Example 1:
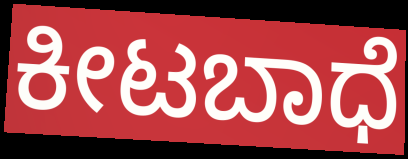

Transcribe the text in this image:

ಕೀಟಬಾಧೆ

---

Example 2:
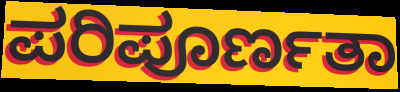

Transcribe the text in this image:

ಪರಿಪೂರ್ಣತಾ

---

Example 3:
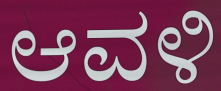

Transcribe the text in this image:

ಆವಳಿ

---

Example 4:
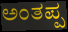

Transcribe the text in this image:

ಅಂತಪ್ಪ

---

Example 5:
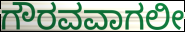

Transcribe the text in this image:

ಗೌರವವಾಗಲೀ